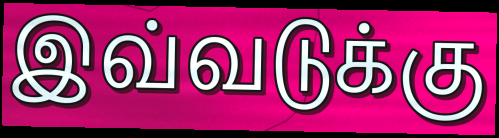
இவ்வடுக்கு